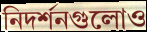
নিদর্শনগুলোও